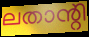
ലതാന്റി